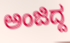
ಅಂಜಿದ್ದ